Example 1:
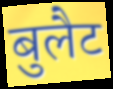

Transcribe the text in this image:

बुलैट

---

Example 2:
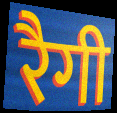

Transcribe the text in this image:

रैगी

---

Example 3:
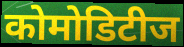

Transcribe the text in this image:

कोमोडिटीज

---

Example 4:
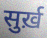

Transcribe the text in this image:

सुर्ख़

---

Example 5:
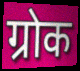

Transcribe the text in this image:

ग्रोक